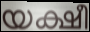
യക്ഷീ